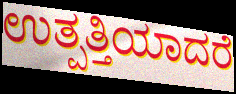
ಉತ್ಪತ್ತಿಯಾದರೆ